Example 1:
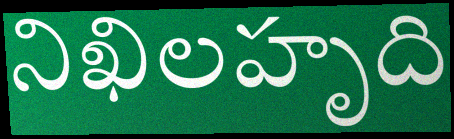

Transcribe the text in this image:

నిఖిలహృది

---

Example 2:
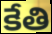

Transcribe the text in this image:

కేతి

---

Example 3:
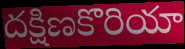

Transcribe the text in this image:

దక్షిణకొరియా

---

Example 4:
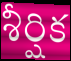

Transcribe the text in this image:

శీర్షిక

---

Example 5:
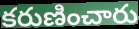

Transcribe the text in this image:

కరుణించారు